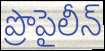
ప్రొపైలీన్